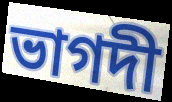
ভাগদী